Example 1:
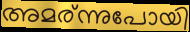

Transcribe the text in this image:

അമര്ന്നുപോയി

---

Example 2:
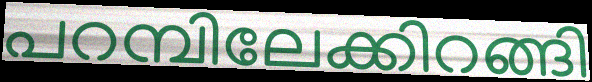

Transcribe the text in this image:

പറമ്പിലേക്കിറങ്ങി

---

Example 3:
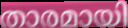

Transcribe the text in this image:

താരമായി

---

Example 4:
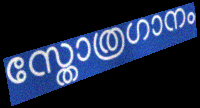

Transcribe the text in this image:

സ്തോത്രഗാനം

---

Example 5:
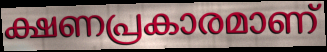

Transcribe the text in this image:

ക്ഷണപ്രകാരമാണ്